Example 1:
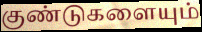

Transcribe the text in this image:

குண்டுகளையும்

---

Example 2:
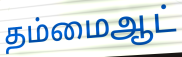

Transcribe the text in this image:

தம்மைஆட்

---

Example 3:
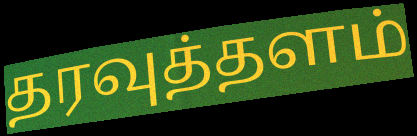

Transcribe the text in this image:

தரவுத்தளம்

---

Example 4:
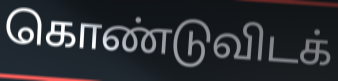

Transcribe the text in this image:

கொண்டுவிடக்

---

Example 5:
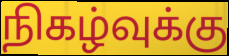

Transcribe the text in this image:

நிகழ்வுக்கு